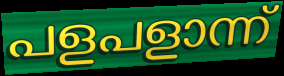
പളപളാന്ന്